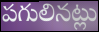
పగులినట్లు